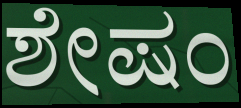
ಶೇಷಂ